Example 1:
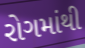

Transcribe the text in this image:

રોગમાંથી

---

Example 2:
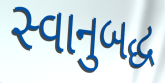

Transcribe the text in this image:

સ્વાનુબદ્ધ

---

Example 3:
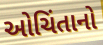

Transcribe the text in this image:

ઓચિંતાનો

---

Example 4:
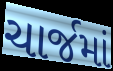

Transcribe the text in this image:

ચાર્જમાં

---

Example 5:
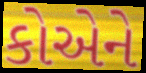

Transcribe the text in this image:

કોએને